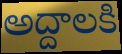
అద్దాలకి